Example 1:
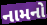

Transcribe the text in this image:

નામનો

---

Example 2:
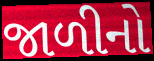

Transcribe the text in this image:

જાળીનો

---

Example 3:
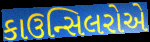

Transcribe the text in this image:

કાઉન્સિલરોએ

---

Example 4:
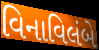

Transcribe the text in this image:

વિનાવિલંબે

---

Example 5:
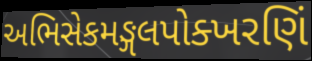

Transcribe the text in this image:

અભિસેકમઙ્ગલપોક્ખરણિં